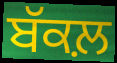
ਬੱਕਲ਼